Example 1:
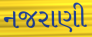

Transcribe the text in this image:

નજરાણી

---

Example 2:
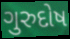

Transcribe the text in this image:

ગુરુદોષ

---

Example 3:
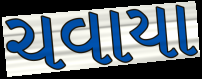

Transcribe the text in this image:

ચવાયા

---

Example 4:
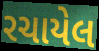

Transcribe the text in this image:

રચાયેલ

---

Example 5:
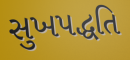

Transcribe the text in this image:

સુખપદ્ધતિ